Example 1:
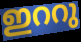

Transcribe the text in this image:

ഇററു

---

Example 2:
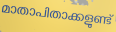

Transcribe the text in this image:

മാതാപിതാക്കളുണ്ട്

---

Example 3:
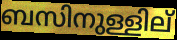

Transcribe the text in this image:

ബസിനുള്ളില്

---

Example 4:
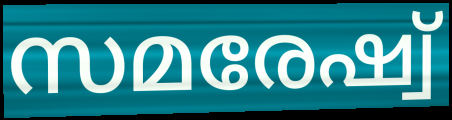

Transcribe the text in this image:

സമരേഷ്വ്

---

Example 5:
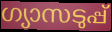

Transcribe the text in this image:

ഗ്യാസടുപ്പ്